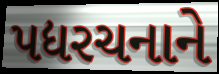
પદ્યરચનાને